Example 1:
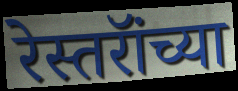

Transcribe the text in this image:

रेस्तरॉंच्या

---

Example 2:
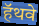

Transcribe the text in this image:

हॅथवे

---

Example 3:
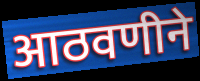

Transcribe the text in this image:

आठवणीने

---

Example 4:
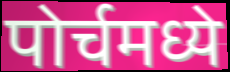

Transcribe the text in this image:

पोर्चमध्ये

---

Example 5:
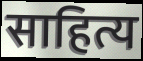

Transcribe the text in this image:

साहित्य